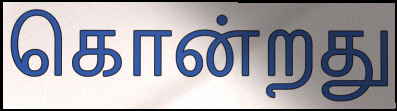
கொன்றது